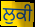
ਲੁਕੀ